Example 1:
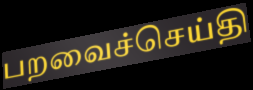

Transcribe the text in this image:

பறவைச்செய்தி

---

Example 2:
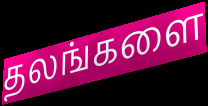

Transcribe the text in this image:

தலங்களை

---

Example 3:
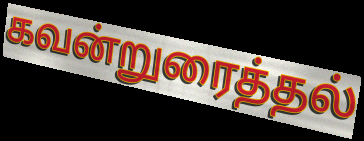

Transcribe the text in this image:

கவன்றுரைத்தல்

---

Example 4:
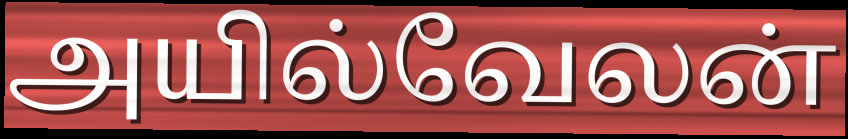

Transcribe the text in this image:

அயில்வேலன்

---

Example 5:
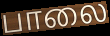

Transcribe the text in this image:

பாலை